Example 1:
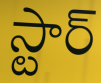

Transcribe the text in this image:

స్టార్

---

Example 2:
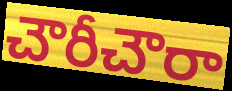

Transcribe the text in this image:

చౌరీచౌరా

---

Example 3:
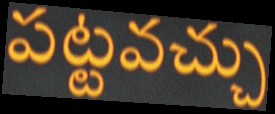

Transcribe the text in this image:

పట్టవచ్చు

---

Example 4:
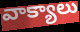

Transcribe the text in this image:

వాక్యాలు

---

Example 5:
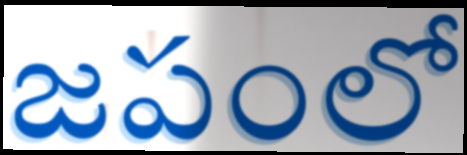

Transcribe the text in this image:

జపంలో